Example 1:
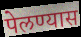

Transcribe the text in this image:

पेलण्यास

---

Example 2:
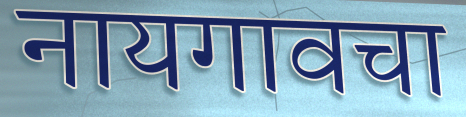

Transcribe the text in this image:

नायगावचा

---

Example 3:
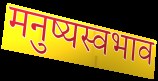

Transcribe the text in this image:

मनुष्यस्वभाव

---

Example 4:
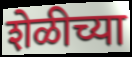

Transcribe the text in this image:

शेळीच्या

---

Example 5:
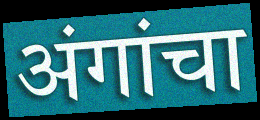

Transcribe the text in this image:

अंगांचा